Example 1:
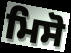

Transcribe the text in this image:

ਮਿਸੋ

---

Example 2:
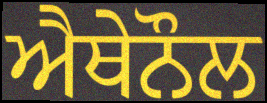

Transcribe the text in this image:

ਐਥੇਨੌਲ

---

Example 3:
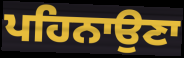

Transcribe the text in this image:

ਪਹਿਨਾਉਣਾ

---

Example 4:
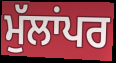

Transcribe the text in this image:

ਮੁੱਲਾਂਪਰ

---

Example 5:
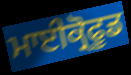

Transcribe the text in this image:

ਮਾਈਕ੍ਰੋਫੂਡ